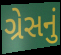
ગ્રેસનું